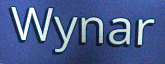
Wynar